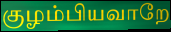
குழம்பியவாறே